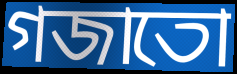
গজাতো